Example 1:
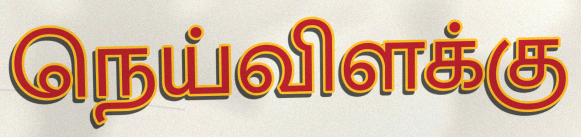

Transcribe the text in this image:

நெய்விளக்கு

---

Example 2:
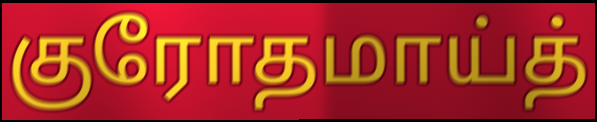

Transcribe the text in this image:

குரோதமாய்த்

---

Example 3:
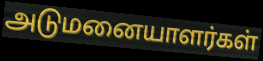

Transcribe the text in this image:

அடுமனையாளர்கள்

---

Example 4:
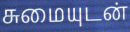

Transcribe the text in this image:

சுமையுடன்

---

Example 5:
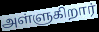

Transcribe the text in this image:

அள்ளுகிறார்